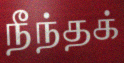
நீந்தக்